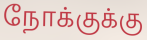
நோக்குக்கு